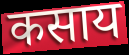
कसाय